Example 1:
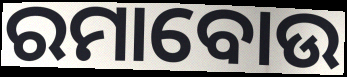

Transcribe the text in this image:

ରମାବୋଉ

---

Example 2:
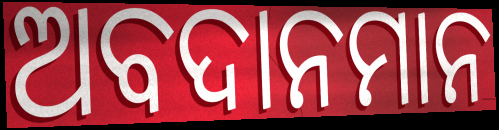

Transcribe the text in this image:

ଅବଦାନମାନ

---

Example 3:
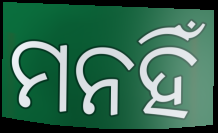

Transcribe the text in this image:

ମନହିଁ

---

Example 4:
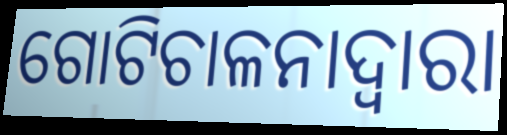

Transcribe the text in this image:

ଗୋଟିଚାଳନାଦ୍ୱାରା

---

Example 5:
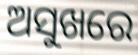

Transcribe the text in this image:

ଅସୁଖରେ